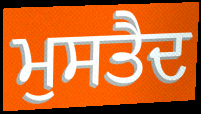
ਮੁਸਤੈਦ